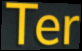
Ter